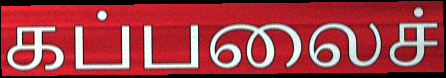
கப்பலைச்